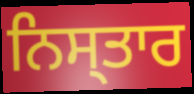
ਨਿਸ੍ਤਾਰ